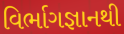
વિર્ભાગજ્ઞાનથી